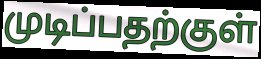
முடிப்பதற்குள்